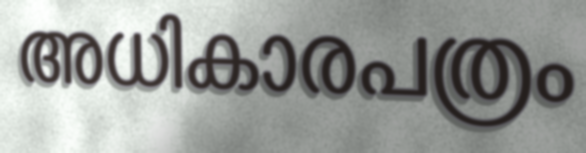
അധികാരപത്രം